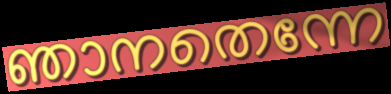
ഞാനതെന്നേ